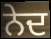
ਨੇਦ